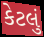
કેટલું